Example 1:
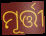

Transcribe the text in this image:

ମୂର୍ତ୍ତୀ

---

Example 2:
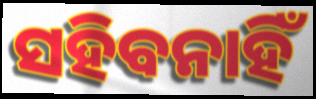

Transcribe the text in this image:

ସହିବନାହିଁ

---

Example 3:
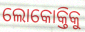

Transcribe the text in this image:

ଲୋକୋକ୍ତିକୁ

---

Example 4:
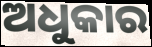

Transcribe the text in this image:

ଅଧୁକାର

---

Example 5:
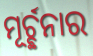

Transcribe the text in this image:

ମୂର୍ଚ୍ଛନାର